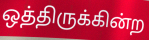
ஒத்திருக்கின்ற